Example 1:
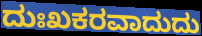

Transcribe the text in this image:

ದುಃಖಕರವಾದುದು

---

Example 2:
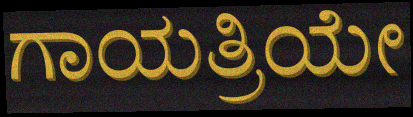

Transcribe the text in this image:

ಗಾಯತ್ರಿಯೇ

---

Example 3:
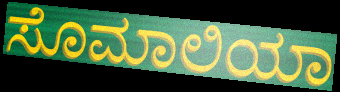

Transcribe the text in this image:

ಸೊಮಾಲಿಯಾ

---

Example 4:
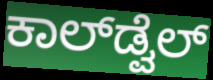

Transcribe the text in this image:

ಕಾಲ್‌ಡ್ವೆಲ್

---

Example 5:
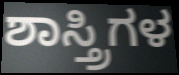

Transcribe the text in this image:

ಶಾಸ್ತ್ರಿಗಳ